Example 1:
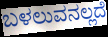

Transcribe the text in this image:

ಬಳಲುವನಲ್ಲದೆ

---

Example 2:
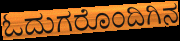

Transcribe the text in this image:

ಓದುಗರೊಂದಿಗಿನ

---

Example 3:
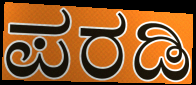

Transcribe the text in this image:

ಪರಡಿ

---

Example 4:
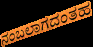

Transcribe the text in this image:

ನಂಬಲಾಗದಂತಹ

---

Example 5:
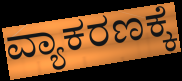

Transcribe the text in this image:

ವ್ಯಾಕರಣಕ್ಕೆ